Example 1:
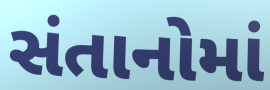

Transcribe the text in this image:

સંતાનોમાં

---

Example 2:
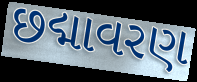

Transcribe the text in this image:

છદ્માવરણ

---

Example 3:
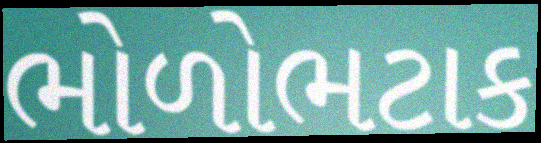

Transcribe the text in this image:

ભોળોભટાક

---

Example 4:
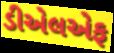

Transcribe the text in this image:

ડીએલએફ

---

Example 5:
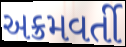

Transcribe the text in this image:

અક્રમવર્તી